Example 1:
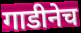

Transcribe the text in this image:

गाडीनेच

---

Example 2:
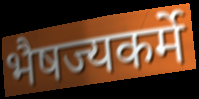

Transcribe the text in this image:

भैषज्यकर्मे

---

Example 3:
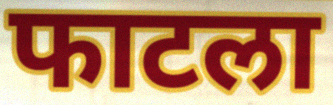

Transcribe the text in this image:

फाटला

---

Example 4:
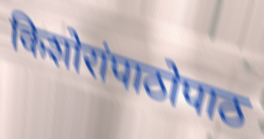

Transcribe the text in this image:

किशोरांपाठोपाठ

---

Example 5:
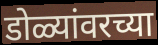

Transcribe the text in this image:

डोळ्यांवरच्या